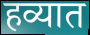
हव्यात